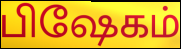
பிஷேகம்